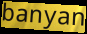
banyan